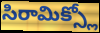
సిరామిక్స్లో